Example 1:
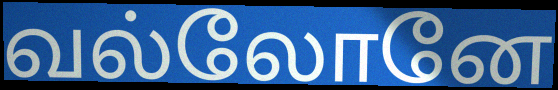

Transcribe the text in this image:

வல்லோனே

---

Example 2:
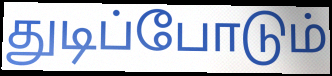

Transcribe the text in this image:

துடிப்போடும்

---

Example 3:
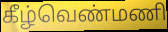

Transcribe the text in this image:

கீழ்வெண்மணி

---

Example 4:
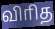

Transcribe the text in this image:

விரித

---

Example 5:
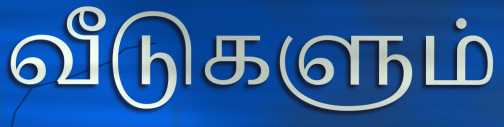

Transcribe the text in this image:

வீடுகளும்